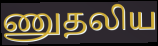
ணுதலிய